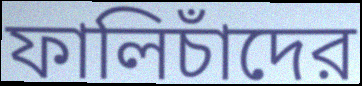
ফালিচাঁদের